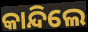
କାନ୍ଦିଲେ